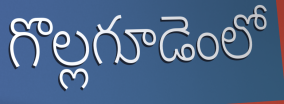
గొల్లగూడెంలో